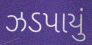
ઝડપાયું